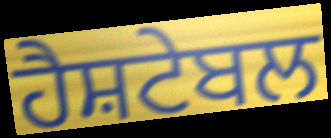
ਹੈਸ਼ਟੇਬਲ